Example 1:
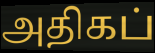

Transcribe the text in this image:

அதிகப்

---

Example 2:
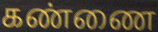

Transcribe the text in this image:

கண்ணை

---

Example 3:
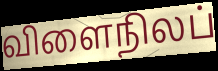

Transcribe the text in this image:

விளைநிலப்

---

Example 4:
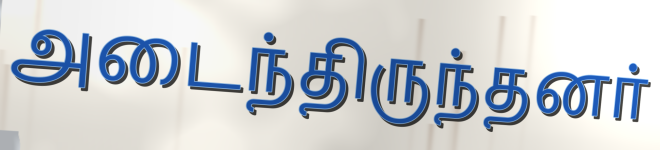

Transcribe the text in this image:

அடைந்திருந்தனர்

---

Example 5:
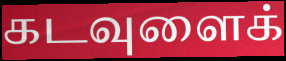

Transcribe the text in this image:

கடவுளைக்